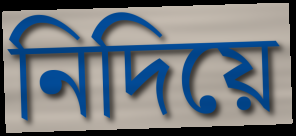
নিদিয়ে